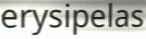
erysipelas